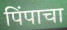
पिंपाचा